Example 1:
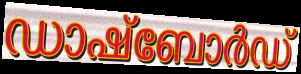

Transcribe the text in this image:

ഡാഷ്ബോർഡ്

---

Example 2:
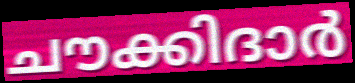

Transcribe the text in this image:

ചൗക്കിദാർ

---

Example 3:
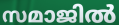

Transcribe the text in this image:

സമാജിൽ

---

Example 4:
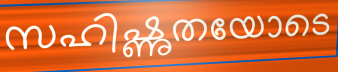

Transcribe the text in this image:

സഹിഷ്ണുതയോടെ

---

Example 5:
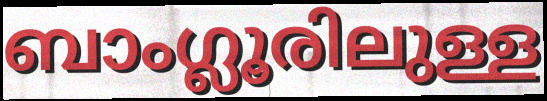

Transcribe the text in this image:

ബാംഗ്ലൂരിലുള്ള